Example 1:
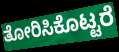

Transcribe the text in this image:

ತೋರಿಸಿಕೊಟ್ಟರೆ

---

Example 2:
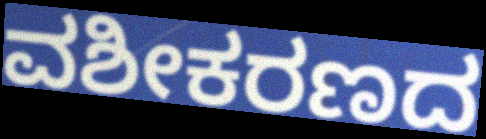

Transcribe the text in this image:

ವಶೀಕರಣದ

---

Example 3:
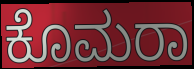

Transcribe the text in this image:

ಕೊಮರಾ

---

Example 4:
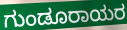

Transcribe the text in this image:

ಗುಂಡೂರಾಯರ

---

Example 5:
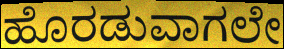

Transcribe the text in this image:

ಹೊರಡುವಾಗಲೇ